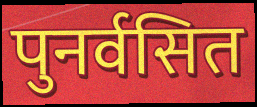
पुनर्वसित